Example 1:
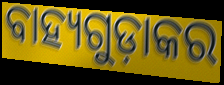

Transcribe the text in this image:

ବାହ୍ୟଗୁଡ଼ାକର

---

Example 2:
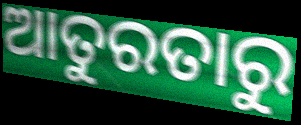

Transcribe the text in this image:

ଆତୁରତାରୁ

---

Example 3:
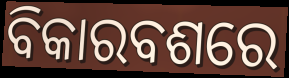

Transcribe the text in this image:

ବିକାରବଶରେ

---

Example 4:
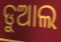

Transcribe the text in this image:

ଡୁଆଲ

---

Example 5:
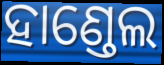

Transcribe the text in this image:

ହାଣ୍ଡେଲ